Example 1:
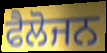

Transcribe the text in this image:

ਫੈਲੋਜਨ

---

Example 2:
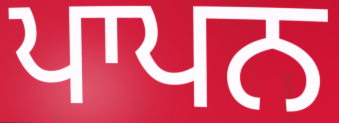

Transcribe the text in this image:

ਪਾਪਨ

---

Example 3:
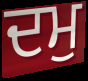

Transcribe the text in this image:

ਦਮੁ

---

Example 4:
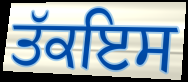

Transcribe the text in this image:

ਤੱਕਇਸ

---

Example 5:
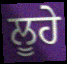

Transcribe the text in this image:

ਲੂਹੇ